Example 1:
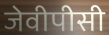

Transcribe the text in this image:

जेवीपीसी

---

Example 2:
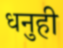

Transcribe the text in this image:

धनुही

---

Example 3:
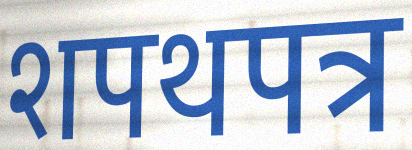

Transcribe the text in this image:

शपथपत्र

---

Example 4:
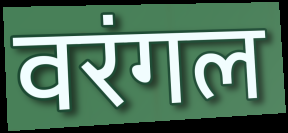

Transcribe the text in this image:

वरंगल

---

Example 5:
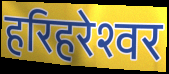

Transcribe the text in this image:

हरिहरेश्वर